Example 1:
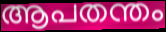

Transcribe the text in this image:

ആപതന്തം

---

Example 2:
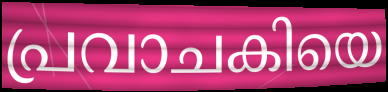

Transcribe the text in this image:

പ്രവാചകിയെ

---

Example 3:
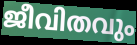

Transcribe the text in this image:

ജീവിതവും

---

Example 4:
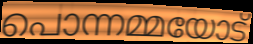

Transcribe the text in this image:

പൊന്നമ്മയോട്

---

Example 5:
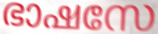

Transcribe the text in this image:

ഭാഷസേ